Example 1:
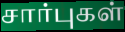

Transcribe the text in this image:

சார்புகள்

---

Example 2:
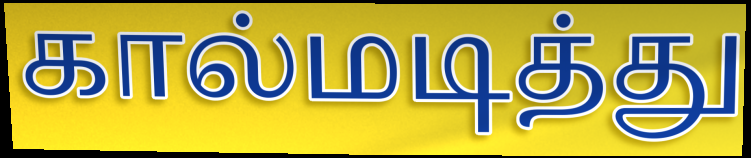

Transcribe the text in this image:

கால்மடித்து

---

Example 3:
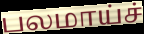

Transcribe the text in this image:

பலமாய்ச்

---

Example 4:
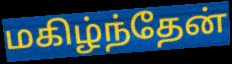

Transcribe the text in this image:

மகிழ்ந்தேன்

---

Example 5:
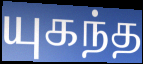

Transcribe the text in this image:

யுகந்த